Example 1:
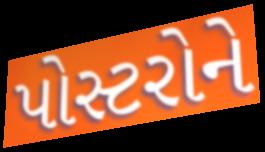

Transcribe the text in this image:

પોસ્ટરોને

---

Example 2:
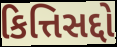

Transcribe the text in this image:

કિત્તિસદ્દો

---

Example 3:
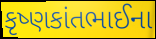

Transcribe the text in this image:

કૃષ્ણકાંતભાઈના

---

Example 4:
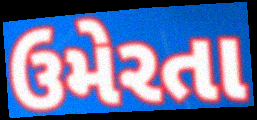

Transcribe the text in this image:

ઉમેરતા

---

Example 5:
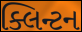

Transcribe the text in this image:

ક્લિન્ટન